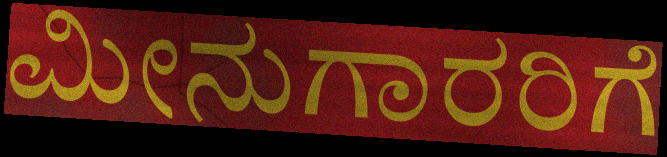
ಮೀನುಗಾರರಿಗೆ